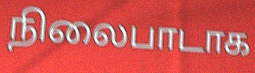
நிலைபாடாக